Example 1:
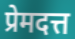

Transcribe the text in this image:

प्रेमदत्त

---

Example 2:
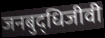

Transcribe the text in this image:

जनबुद्धिजीवी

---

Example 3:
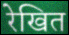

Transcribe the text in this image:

रेखित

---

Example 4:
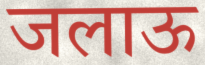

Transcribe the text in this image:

जलाऊ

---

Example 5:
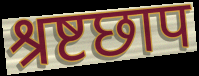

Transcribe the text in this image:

श्रष्टछाप